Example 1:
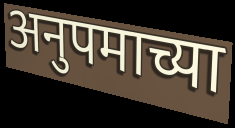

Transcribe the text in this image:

अनुपमाच्या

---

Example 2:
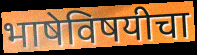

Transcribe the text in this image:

भाषेविषयीचा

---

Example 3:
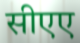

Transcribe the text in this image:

सीएए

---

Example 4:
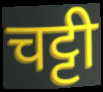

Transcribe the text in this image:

चट्टी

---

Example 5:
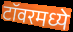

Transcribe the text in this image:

टॉवरमध्ये